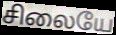
சிலையே